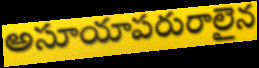
అసూయాపరురాలైన